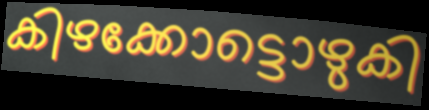
കിഴക്കോട്ടൊഴുകി